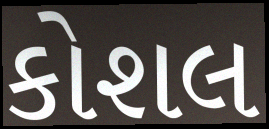
કોશલ